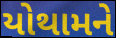
યોથામને